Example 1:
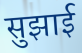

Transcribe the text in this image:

सुझाई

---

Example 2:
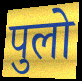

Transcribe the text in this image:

पुलो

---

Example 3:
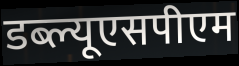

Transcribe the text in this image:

डब्ल्यूएसपीएम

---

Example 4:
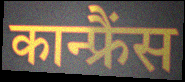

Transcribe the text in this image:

कान्फ्रैंस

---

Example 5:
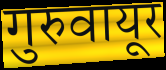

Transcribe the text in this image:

गुरुवायूर